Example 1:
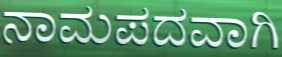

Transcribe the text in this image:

ನಾಮಪದವಾಗಿ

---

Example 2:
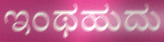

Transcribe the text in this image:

ಇಂಥಹುದು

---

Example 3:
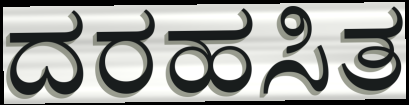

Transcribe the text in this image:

ದರಹಸಿತ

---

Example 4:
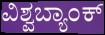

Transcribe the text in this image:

ವಿಶ್ವಬ್ಯಾಂಕ್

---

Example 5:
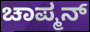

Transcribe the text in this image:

ಚಾಪ್ಮನ್